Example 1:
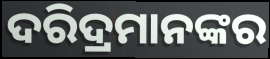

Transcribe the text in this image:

ଦରିଦ୍ରମାନଙ୍କର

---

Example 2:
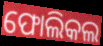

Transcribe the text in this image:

ଫୋଲିକଲ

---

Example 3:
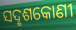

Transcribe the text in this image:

ସଦୃଶକୋଣୀ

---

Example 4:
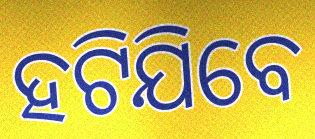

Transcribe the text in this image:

ହଟିଯିବେ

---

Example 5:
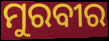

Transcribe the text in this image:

ମୁରବୀର